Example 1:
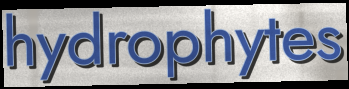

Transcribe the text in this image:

hydrophytes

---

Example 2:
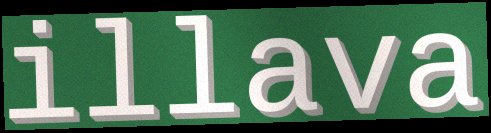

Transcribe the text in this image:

illava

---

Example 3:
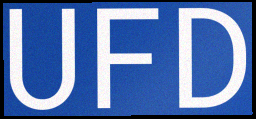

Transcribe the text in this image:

UFD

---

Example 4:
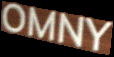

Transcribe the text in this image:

OMNY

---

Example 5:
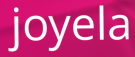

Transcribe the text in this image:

joyela